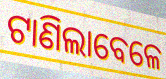
ଟାଣିଲାବେଳେ